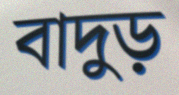
বাদুড়